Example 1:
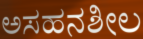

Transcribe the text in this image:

ಅಸಹನಶೀಲ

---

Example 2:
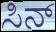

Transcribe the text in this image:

ಸಿನ್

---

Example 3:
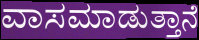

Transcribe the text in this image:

ವಾಸಮಾಡುತ್ತಾನೆ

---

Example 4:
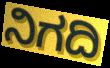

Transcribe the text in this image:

ನಿಗದಿ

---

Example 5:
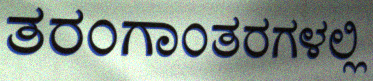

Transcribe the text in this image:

ತರಂಗಾಂತರಗಳಲ್ಲಿ